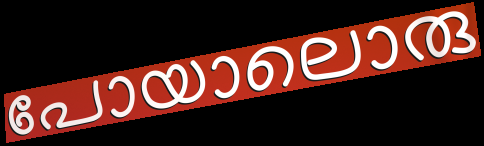
പോയാലൊരു